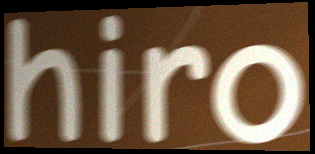
hiro